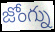
జోంగ్ను